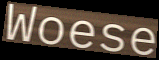
Woese